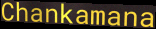
Chankamana